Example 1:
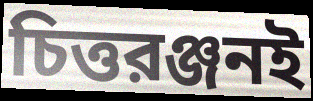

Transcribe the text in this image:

চিত্তরঞ্জনই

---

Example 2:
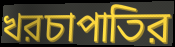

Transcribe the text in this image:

খরচাপাতির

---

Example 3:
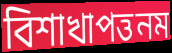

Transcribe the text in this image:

বিশাখাপত্তনম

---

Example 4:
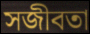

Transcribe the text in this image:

সজীবতা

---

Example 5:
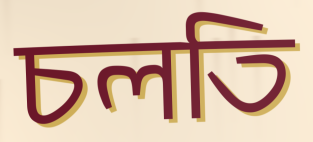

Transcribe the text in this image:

চলতি